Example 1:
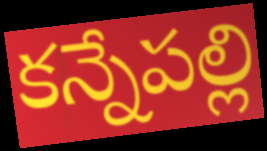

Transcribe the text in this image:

కన్నేపల్లి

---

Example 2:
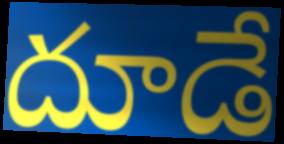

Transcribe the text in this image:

దూడే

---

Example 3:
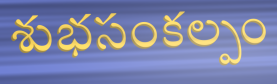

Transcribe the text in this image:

శుభసంకల్పం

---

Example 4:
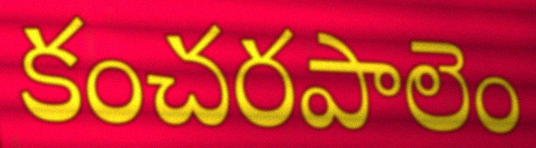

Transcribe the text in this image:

కంచరపాలెం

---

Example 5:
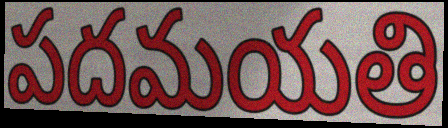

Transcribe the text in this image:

పదమయతి